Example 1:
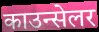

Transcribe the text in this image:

काउन्सेलर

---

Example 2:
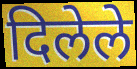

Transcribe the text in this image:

दिलेले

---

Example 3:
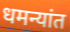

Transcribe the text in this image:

धमन्यांत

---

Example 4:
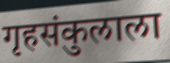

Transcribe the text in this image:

गृहसंकुलाला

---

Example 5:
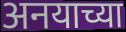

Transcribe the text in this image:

अनयाच्या